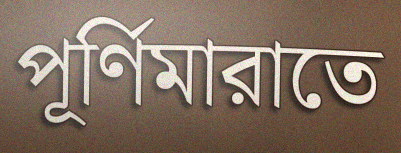
পূর্ণিমারাতে